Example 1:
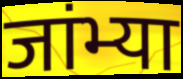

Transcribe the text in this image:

जांभ्या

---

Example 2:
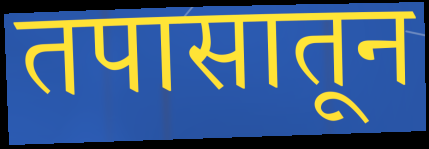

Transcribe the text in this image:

तपासातून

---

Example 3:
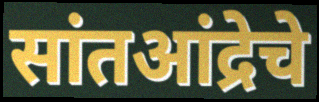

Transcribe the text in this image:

सांतआंद्रेचे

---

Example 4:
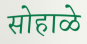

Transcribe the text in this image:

सोहाळे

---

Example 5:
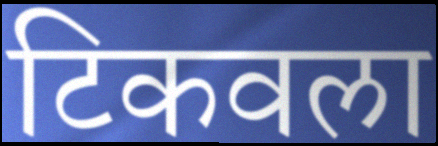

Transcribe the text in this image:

टिकवला